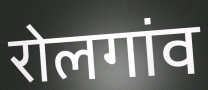
रोलगांव